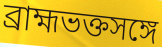
ব্রাহ্মভক্তসঙ্গে